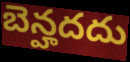
బెన్హదదు